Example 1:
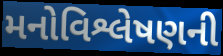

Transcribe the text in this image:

મનોવિશ્લેષણની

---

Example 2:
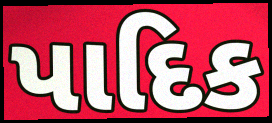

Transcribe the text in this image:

પાદિક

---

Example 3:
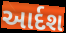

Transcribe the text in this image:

આર્દશ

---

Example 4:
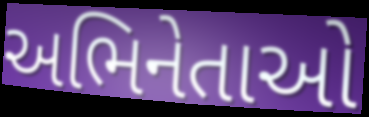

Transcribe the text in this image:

અભિનેતાઓ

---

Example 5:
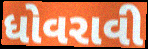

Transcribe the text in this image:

ધોવરાવી